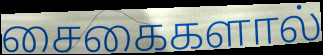
சைகைகளால்